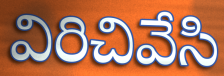
విరిచివేసి